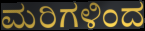
ಮರಿಗಳಿಂದ